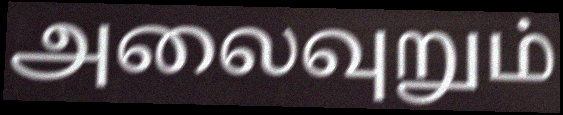
அலைவுறும்